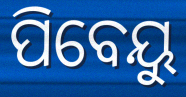
ପିବେୟୁ